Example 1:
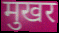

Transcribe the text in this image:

मुखर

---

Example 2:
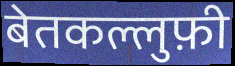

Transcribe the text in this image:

बेतकल्लुफ़ी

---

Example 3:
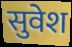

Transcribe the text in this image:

सुवेश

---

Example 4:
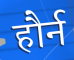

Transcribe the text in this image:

हौर्न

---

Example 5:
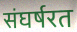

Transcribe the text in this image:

संघर्षरत